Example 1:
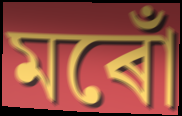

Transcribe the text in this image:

মৰোঁ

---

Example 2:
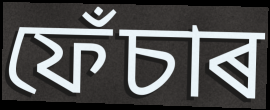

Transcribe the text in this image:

ফেঁচাৰ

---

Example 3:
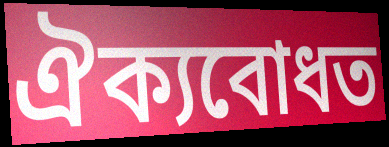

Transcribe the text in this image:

ঐক্যবোধত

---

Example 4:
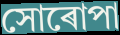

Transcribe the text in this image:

সোৰোপা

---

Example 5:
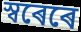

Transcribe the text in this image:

স্বৰেৰে